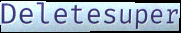
Deletesuper